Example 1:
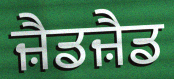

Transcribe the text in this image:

ਜ਼ੈਡਜ਼ੈਡ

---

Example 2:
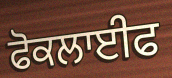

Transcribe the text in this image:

ਫੋਕਲਾਈਫ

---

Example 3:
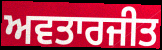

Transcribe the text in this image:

ਅਵਤਾਰਜੀਤ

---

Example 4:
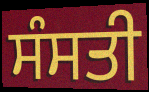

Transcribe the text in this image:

ਸੰਸਤੀ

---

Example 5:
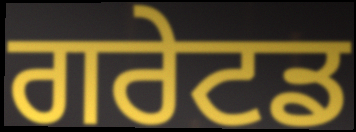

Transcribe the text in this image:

ਗਰੇਟਡ